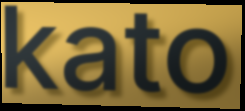
kato